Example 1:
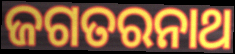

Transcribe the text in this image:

ଜଗତରନାଥ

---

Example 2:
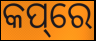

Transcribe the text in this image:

କପ୍‌ରେ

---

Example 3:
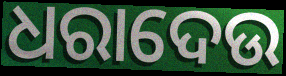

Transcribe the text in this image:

ଧରାଦେଉ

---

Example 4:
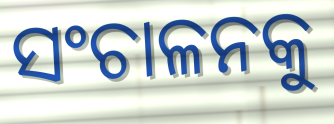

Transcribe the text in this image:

ସଂଚାଳନକୁ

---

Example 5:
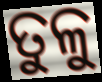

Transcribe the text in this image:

ତୁଳୁ